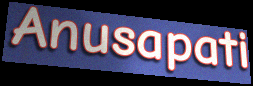
Anusapati